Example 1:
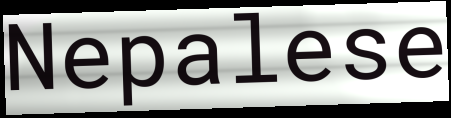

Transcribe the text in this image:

Nepalese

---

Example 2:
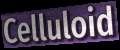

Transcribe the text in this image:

Celluloid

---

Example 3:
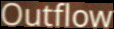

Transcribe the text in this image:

Outflow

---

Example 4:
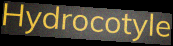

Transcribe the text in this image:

Hydrocotyle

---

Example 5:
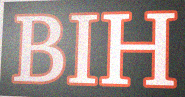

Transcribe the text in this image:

BIH